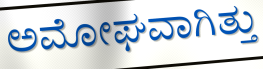
ಅಮೋಘವಾಗಿತ್ತು